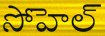
సోహెల్